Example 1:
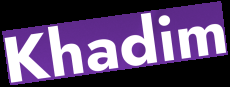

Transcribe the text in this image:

Khadim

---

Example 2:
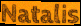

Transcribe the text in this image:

Natalis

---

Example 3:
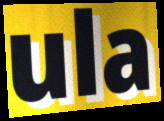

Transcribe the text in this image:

ula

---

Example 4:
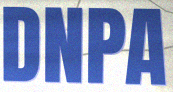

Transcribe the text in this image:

DNPA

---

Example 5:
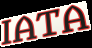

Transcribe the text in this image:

IATA